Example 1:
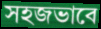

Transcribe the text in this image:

সহজভাবে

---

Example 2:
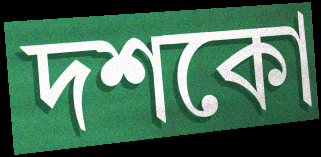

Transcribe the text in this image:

দশকো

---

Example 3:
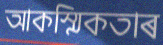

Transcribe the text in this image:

আকস্মিকতাৰ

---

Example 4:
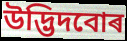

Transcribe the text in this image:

উদ্ভিদবোৰ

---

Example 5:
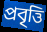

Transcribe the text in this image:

প্ৰবৃত্তি